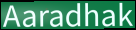
Aaradhak